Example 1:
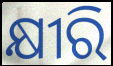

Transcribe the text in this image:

କ୍ଷୀରି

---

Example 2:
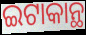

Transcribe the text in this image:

ଇଟାକାନ୍ଥ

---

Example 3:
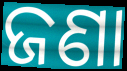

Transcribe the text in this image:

ଜଣା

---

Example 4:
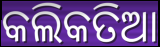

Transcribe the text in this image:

କଲିକତିଆ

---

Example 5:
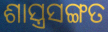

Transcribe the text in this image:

ଶାସ୍ତ୍ରସଙ୍ଗତ